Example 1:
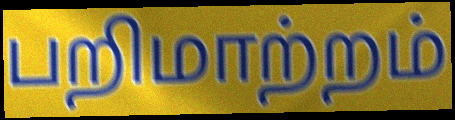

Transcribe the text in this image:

பறிமாற்றம்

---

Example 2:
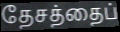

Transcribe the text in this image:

தேசத்தைப்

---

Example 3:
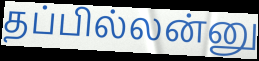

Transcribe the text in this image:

தப்பில்லன்னு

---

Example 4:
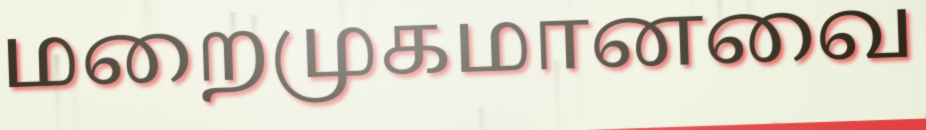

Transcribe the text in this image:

மறைமுகமானவை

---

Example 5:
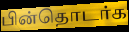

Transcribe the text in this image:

பின்தொடர்க